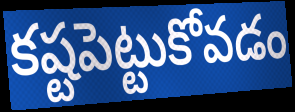
కష్టపెట్టుకోవడం